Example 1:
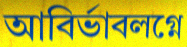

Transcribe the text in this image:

আবির্ভাবলগ্নে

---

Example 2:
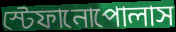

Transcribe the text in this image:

স্টেফানোপোলাস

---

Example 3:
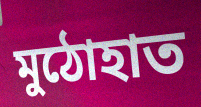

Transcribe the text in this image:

মুঠোহাত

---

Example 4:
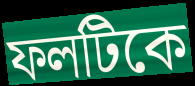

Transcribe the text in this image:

ফলটিকে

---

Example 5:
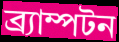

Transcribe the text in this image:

ব্র্যাম্পটন